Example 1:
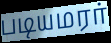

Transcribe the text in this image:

படியமரர்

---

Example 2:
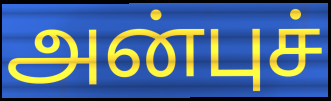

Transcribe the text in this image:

அன்புச்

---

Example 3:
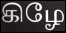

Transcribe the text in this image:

கிழே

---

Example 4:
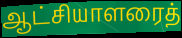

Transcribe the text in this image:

ஆட்சியாளரைத்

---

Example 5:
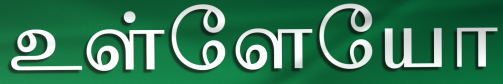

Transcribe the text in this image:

உள்ளேயோ